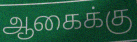
ஆகைக்கு